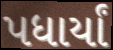
પધાર્યાં